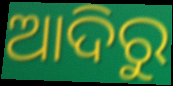
ଆଦିରୁ